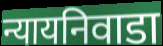
न्यायनिवाडा